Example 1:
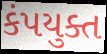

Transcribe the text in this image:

કંપયુક્ત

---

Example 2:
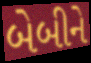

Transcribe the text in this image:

બેબીને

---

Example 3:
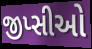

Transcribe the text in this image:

જીપ્સીઓ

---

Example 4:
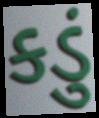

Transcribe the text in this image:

કડું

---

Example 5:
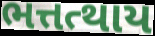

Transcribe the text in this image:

ભત્તત્થાય